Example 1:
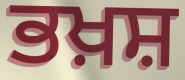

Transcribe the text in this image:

ਭਖ਼ਸ਼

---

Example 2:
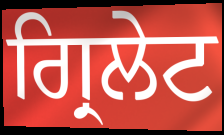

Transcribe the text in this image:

ਗ੍ਰਿਲੇਟ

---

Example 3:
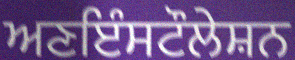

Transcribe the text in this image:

ਅਣਇੰਸਟੌਲੇਸ਼ਨ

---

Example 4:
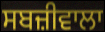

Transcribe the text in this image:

ਸਬਜ਼ੀਵਾਲਾ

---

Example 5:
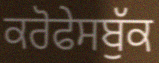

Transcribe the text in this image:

ਕਰੋਫੇਸਬੁੱਕ